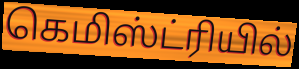
கெமிஸ்ட்ரியில்